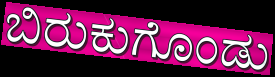
ಬಿರುಕುಗೊಂಡು